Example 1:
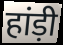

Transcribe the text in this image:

हांड़ी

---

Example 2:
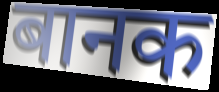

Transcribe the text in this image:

बानक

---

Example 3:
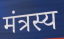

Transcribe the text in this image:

मंत्रस्य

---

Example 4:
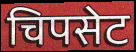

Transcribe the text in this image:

चिपसेट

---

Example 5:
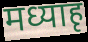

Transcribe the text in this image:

मध्याहृ